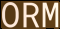
ORM